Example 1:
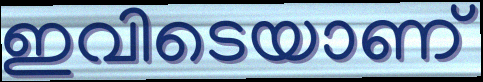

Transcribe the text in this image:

ഇവിടെയാണ്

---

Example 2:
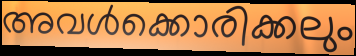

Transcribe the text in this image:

അവൾക്കൊരിക്കലും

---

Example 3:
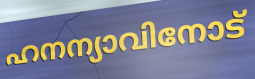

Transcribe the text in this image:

ഹനന്യാവിനോട്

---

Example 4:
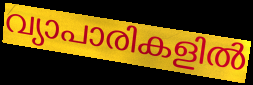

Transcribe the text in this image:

വ്യാപാരികളിൽ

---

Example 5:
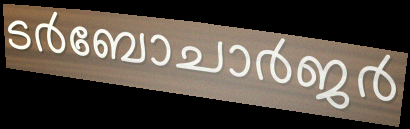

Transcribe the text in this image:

ടർബോചാർജർ